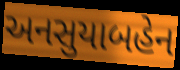
અનસુયાબહેન